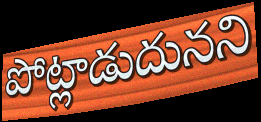
పోట్లాడుదునని